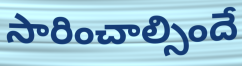
సారించాల్సిందే